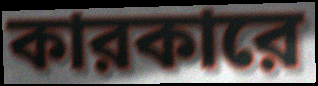
কারকারে